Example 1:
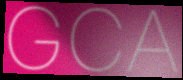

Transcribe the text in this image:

GCA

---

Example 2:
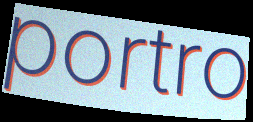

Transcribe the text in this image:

portro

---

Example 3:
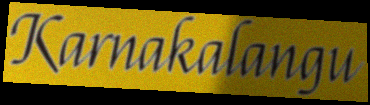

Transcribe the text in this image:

Karnakalangu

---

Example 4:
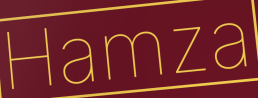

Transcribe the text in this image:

Hamza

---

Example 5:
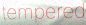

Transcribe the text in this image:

tempered